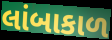
લાંબાકાળ